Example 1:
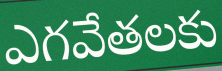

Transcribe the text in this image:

ఎగవేతలకు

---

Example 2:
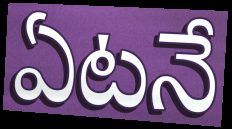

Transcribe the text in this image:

ఏటనే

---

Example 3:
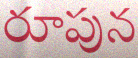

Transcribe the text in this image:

రూపున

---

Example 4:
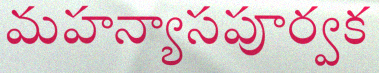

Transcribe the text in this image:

మహన్యాసపూర్వక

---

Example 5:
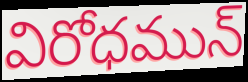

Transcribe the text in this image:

విరోధమున్